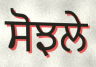
ਸੋਝਲੇ